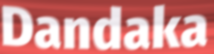
Dandaka